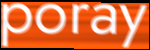
poray